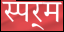
स्पर्म